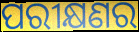
ପରୀକ୍ଷଣର